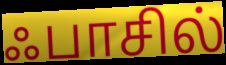
ஃபாசில்